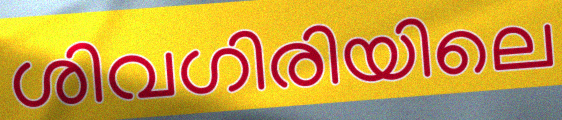
ശിവഗിരിയിലെ